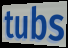
tubs